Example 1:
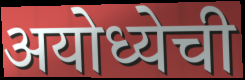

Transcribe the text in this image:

अयोध्येची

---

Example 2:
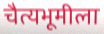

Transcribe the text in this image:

चैत्यभूमीला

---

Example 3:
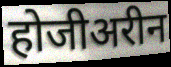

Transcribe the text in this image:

होजीअरीन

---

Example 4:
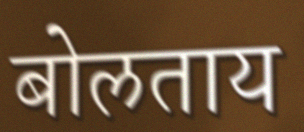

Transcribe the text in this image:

बोलताय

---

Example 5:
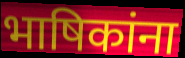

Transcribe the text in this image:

भाषिकांना